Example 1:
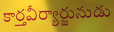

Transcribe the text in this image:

కార్తవీర్యార్జునుడు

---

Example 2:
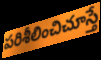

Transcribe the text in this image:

పరిశీలించిచూస్తే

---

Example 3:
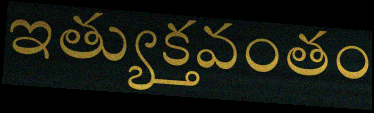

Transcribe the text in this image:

ఇత్యుక్తవంతం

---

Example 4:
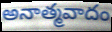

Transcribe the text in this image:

అనాత్మవాదం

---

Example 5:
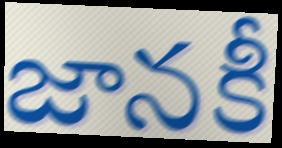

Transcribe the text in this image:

జానకీ